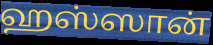
ஹஸ்ஸான்